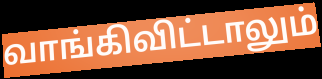
வாங்கிவிட்டாலும்